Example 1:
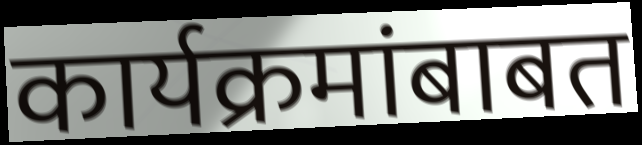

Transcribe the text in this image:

कार्यक्रमांबाबत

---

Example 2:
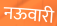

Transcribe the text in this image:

नऊवारी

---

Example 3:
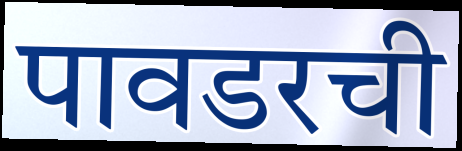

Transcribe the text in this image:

पावडरची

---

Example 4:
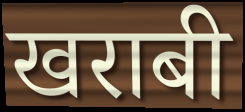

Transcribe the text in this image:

खराबी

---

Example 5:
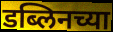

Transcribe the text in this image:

डब्लिनच्या